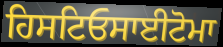
ਹਿਸਟਿਓਸਾਈਟੋਮਾ